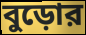
বুড়োর